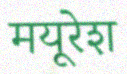
मयूरेश